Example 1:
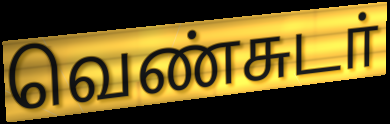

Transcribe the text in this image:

வெண்சுடர்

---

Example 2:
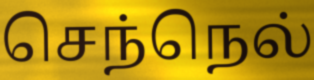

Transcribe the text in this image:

செந்நெல்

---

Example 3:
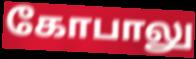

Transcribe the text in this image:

கோபாலு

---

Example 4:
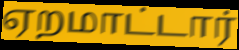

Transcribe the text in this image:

ஏறமாட்டார்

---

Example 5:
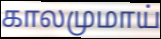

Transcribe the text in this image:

காலமுமாய்